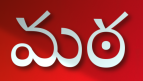
మఠ